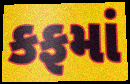
કફમાં